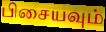
பிசையவும்